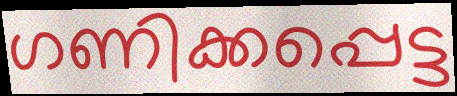
ഗണിക്കപ്പെട്ട